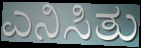
ಎನಿಸಿತು